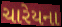
ચારેયના